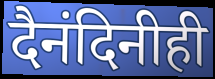
दैनंदिनीही